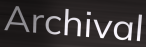
Archival